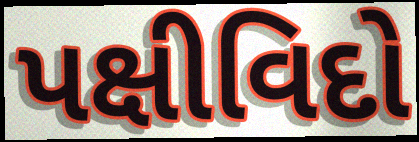
પક્ષીવિદો